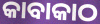
କାବାକାଠ